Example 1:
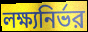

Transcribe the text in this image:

লক্ষ্যনির্ভর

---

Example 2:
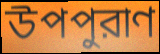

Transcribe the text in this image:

উপপুরাণ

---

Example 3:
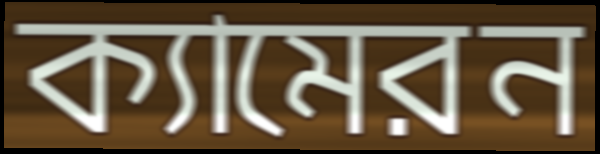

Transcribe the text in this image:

ক্যামেরন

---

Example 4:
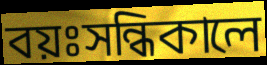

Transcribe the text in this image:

বয়ঃসন্ধিকালে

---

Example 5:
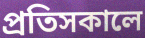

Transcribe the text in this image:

প্রতিসকালে